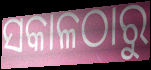
ସକାଳଠାରୁ